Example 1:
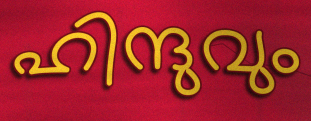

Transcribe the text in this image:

ഹിന്ദുവും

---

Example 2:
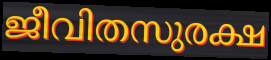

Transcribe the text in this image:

ജീവിതസുരക്ഷ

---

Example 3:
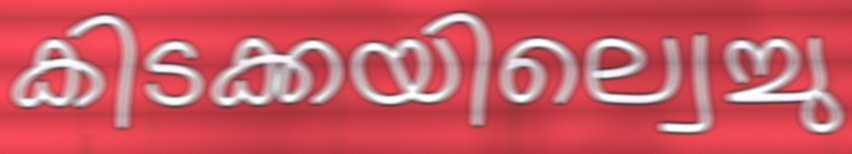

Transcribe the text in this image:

കിടക്കയില്വെച്ചു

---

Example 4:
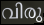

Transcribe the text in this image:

വിരു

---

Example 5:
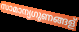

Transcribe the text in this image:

സാമാന്യഗുണങ്ങള്